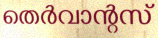
തെർവാന്റസ്